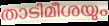
താടിമീശയും